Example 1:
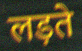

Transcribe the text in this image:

लड़ते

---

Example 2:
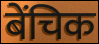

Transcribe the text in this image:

बेंचिक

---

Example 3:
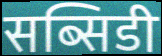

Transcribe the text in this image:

सब्सिडी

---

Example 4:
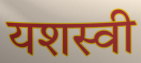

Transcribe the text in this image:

यशस्‍वी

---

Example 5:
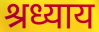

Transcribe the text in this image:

श्रध्याय